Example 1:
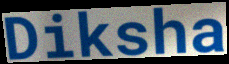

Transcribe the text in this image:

Diksha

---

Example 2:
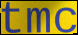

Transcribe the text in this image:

tmc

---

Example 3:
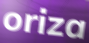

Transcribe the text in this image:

oriza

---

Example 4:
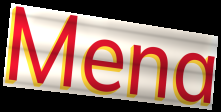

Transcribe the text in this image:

Mena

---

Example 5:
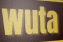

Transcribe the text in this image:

wuta